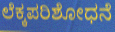
ಲೆಕ್ಕಪರಿಶೋಧನೆ